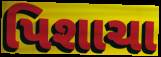
પિશાચા